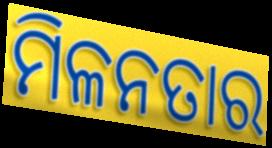
ମିଳନତାର